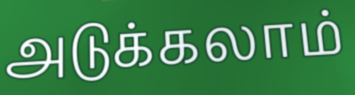
அடுக்கலாம்